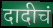
दादीचं